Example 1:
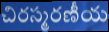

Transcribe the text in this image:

చిరస్మరణీయ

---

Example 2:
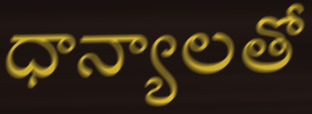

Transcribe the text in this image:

ధాన్యాలతో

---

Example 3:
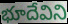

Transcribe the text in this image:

భూదేవిని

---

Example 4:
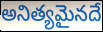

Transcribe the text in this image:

అనిత్యమైనదే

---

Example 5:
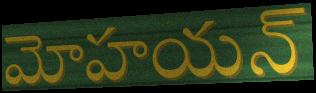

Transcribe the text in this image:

మోహయన్